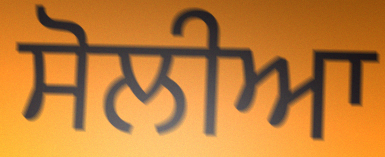
ਸੋਲੀਆ